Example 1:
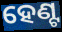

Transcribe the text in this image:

ହେଣ୍ଟ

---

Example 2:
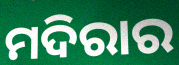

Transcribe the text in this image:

ମଦିରାର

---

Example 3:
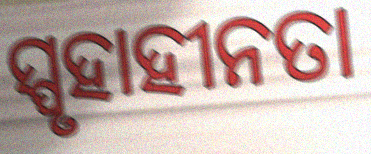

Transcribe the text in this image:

ସ୍ପୃହାହୀନତା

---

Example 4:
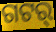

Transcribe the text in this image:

ଗଟର୍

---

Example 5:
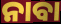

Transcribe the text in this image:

ନାବା